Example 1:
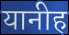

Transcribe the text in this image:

यानीह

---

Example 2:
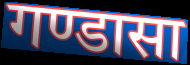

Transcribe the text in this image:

गण्डासा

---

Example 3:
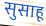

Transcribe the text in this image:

सुसाहू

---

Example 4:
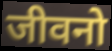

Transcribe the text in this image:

जीवनो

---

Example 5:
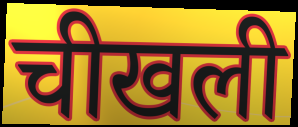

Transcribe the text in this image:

चीखली